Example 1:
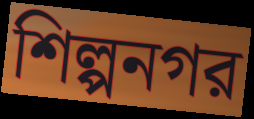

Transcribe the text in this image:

শিল্পনগর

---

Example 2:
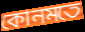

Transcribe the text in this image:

কোনমতে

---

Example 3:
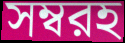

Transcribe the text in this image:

সম্বরহ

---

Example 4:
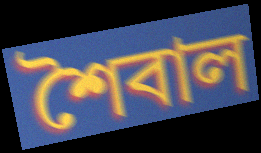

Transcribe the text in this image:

শৈবাল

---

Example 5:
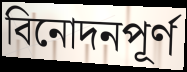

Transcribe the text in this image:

বিনোদনপূর্ণ